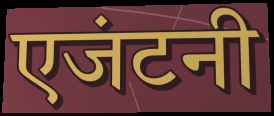
एजंटनी